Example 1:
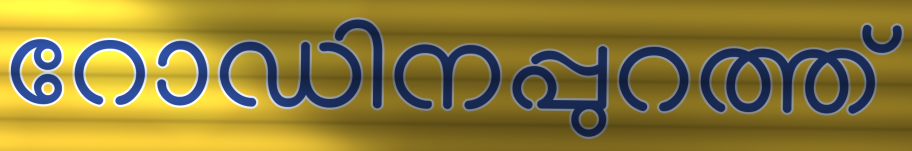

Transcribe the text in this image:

റോഡിനപ്പുറത്ത്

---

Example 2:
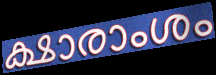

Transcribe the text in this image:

ക്ഷാരാംശം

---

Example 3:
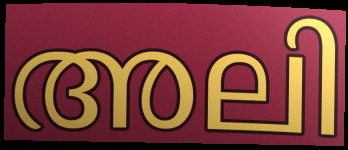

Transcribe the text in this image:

അലി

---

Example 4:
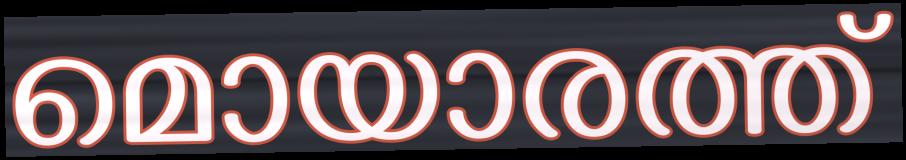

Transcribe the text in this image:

മൊയാരത്ത്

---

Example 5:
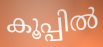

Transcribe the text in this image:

കൂപ്പിൽ